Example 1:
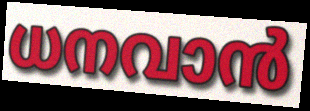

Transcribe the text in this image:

ധനവാൻ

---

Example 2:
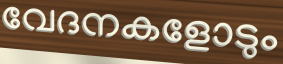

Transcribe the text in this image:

വേദനകളോടും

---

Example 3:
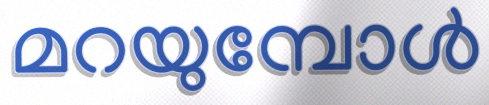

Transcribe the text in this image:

മറയുമ്പോൾ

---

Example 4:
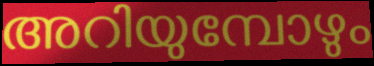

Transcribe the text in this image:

അറിയുമ്പോഴും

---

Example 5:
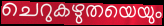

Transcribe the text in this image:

ചെറുകഴുതയെയും